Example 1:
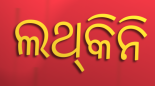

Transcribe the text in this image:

ଲଥ୍‌କିନି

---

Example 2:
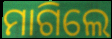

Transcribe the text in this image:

ମାଗିଲେ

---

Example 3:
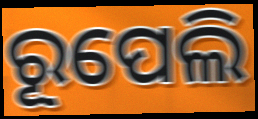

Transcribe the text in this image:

ରୂପେଲି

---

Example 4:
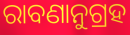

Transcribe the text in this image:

ରାବଣାନୁଗ୍ରହ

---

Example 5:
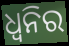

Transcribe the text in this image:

ଧ୍ୱନିର